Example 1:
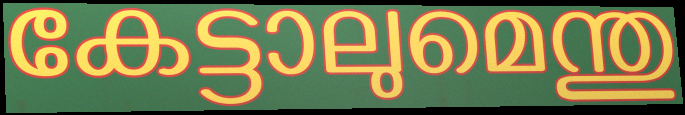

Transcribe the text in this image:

കേട്ടാലുമെന്തു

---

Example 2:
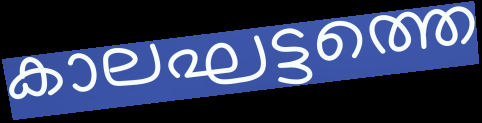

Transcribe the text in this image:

കാലഘട്ടത്തെ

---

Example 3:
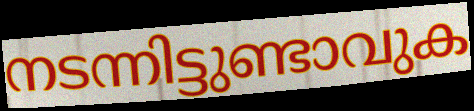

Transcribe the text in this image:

നടന്നിട്ടുണ്ടാവുക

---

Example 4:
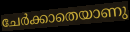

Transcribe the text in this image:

ചേർക്കാതെയാണു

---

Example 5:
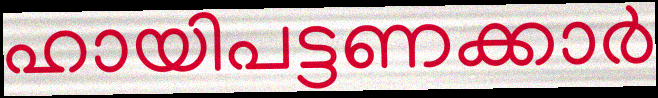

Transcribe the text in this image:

ഹായിപട്ടണക്കാർ